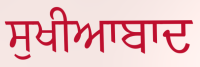
ਸੁਖੀਆਬਾਦ